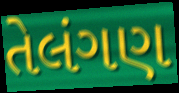
તેલંગણ